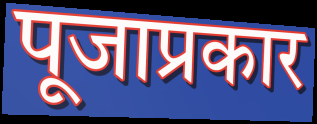
पूजाप्रकार